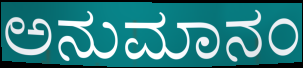
ಅನುಮಾನಂ